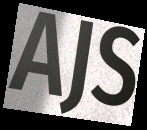
AJS